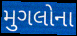
મુગલોના